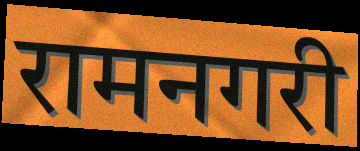
रामनगरी